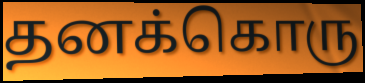
தனக்கொரு